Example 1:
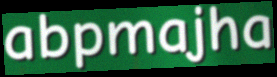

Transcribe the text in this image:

abpmajha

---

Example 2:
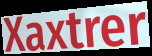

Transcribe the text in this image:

Xaxtrer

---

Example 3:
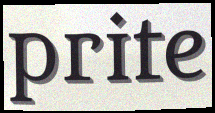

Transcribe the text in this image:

prite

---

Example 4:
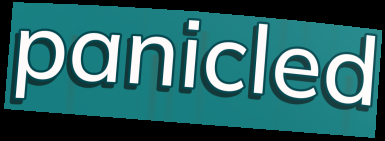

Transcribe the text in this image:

panicled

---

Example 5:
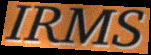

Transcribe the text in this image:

IRMS